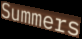
Summers